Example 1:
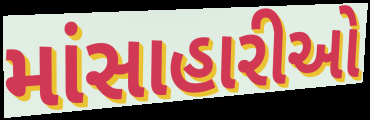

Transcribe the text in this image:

માંસાહારીઓ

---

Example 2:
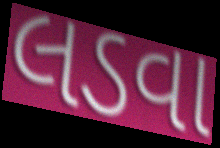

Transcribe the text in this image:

લડવા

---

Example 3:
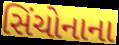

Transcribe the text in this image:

સિંચોનાના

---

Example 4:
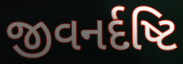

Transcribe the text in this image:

જીવનર્દષ્ટિ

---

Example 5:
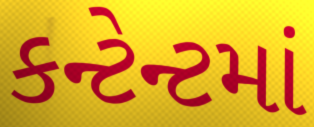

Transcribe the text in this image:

કન્ટેન્ટમાં